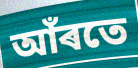
আঁৰতে